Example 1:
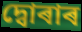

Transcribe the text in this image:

দ্বোৰাৰ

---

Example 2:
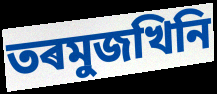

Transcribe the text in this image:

তৰমুজখিনি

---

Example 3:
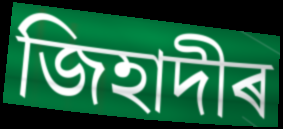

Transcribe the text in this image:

জিহাদীৰ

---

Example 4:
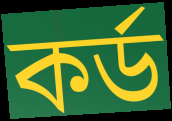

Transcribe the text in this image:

কৰ্ড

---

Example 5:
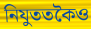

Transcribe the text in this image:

নিযুততকৈও